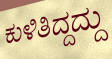
ಕುಳಿತಿದ್ದದ್ದು